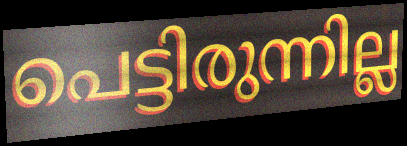
പെട്ടിരുന്നില്ല